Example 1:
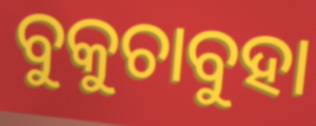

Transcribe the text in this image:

ବୁକୁଚାବୁହା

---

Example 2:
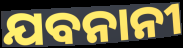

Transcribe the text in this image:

ଯବନାନୀ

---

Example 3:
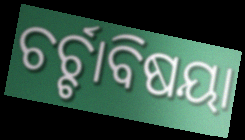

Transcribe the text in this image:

ଚର୍ଚ୍ଚାବିଷୟା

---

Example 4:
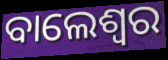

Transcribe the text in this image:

ବାଲେଶ୍ବର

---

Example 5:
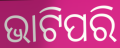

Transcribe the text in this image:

ଭାଟିପରି